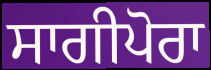
ਸਾਗੀਪੋਰਾ